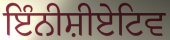
ਇੰਨੀਸ਼ੀਏਟਿਵ